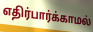
எதிர்பார்க்காமல்